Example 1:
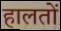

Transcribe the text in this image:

हालतों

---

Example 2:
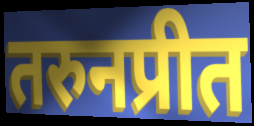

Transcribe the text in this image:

तरुनप्रीत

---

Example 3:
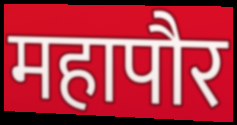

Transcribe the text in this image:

महापौर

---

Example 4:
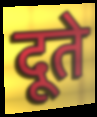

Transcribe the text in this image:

दूते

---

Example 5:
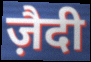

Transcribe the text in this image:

ज़ैदी